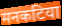
मनकटिया